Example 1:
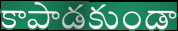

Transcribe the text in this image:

కాపాడకుండా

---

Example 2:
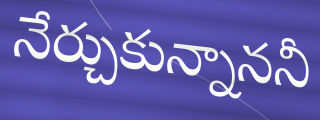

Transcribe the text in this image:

నేర్చుకున్నాననీ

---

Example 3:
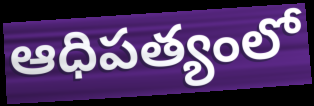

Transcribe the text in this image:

ఆధిపత్యంలో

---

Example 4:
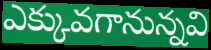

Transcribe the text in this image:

ఎక్కువగానున్నవి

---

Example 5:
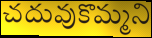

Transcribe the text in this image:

చదువుకొమ్మని